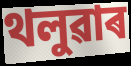
থলুৱাৰ